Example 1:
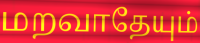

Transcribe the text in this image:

மறவாதேயும்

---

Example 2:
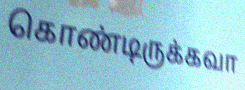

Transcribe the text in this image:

கொண்டிருக்கவா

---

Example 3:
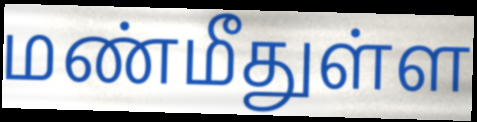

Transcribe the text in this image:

மண்மீதுள்ள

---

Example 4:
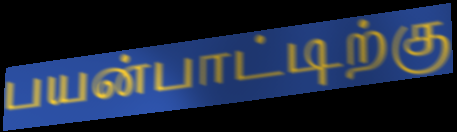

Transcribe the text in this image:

பயன்பாட்டிற்கு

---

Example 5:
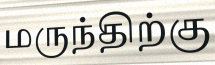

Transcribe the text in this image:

மருந்திற்கு